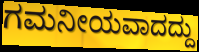
ಗಮನೀಯವಾದದ್ದು